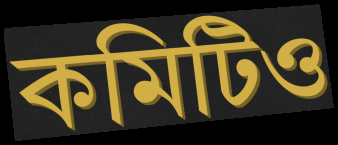
কমিটিও